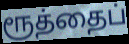
ரூத்தைப்